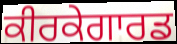
ਕੀਰਕੇਗਾਰਡ